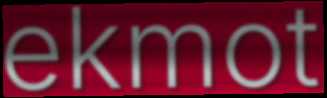
ekmot